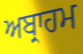
ਅਬ੍ਰਾਹਮ